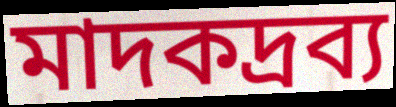
মাদকদ্রব্য